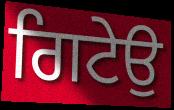
ਗਿਟੇਉ